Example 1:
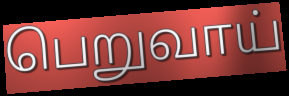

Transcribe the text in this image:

பெறுவாய்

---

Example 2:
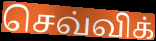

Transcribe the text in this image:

செவ்விக்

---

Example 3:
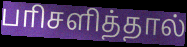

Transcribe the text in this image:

பரிசளித்தால்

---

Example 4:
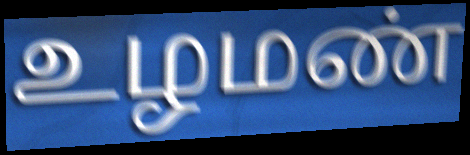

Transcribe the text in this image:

உழமண்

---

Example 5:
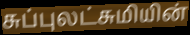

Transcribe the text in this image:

சுப்புலட்சுமியின்